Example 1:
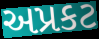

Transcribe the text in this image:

અપ્રકટ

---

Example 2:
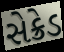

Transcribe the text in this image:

સેક્રેડ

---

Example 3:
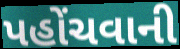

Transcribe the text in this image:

પહોંચવાની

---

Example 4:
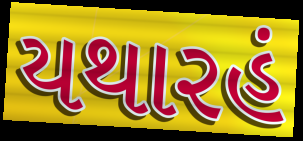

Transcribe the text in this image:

યથારહં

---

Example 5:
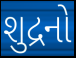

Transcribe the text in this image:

શુદ્રનો